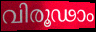
വിരൂഢാം